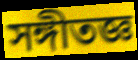
সঙ্গীতজ্ঞ